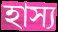
হাস্য